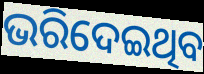
ଭରିଦେଇଥିବ